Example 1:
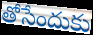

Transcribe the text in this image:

తోసేందుకు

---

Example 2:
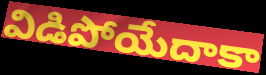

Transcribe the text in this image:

విడిపోయేదాకా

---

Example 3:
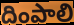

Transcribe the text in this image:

దింపాలి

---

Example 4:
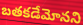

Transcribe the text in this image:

బతకడేమోనని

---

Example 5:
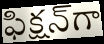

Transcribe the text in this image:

ఫిక్షన్‌గా